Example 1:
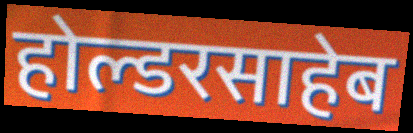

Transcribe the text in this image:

होल्डरसाहेब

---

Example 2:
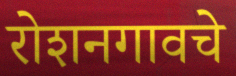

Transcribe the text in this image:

रोशनगावचे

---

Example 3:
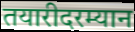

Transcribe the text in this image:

तयारीदरम्यान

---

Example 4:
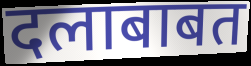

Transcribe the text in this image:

दलाबाबत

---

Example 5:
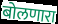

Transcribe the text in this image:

बोलणारा